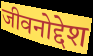
जीवनोद्देश